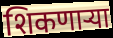
शिकणार्‍या